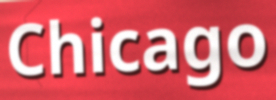
Chicago